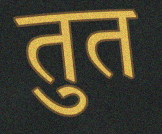
तुत